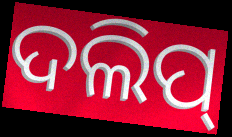
ଦଲିପ୍